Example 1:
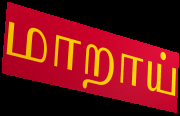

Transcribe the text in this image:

மாறாய்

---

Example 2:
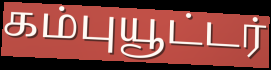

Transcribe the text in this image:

கம்புயூட்டர்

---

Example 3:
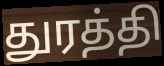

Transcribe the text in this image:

துரத்தி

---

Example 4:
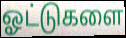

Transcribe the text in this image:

ஓட்டுகளை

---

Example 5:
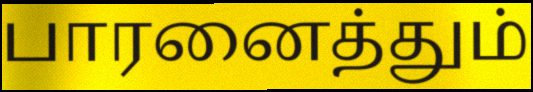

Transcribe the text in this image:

பாரனைத்தும்